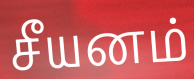
சீயனம்